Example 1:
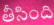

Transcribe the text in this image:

తీసింది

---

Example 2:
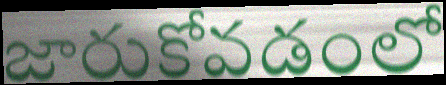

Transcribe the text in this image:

జారుకోవడంలో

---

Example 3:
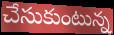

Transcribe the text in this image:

చేసుకుంటున్న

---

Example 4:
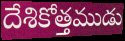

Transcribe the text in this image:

దేశికోత్తముడు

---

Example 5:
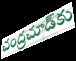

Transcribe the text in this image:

చంద్రచూడ్‌కు